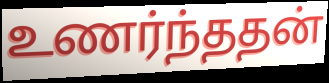
உணர்ந்ததன்